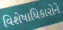
વિશેષાધિકારોને